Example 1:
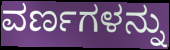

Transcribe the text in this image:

ವರ್ಣಗಳನ್ನು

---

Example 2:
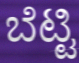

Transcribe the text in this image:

ಬೆಟ್ಟಿ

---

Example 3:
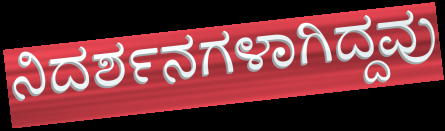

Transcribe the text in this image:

ನಿದರ್ಶನಗಳಾಗಿದ್ದವು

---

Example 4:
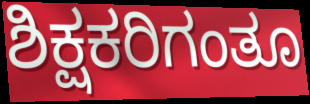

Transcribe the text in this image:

ಶಿಕ್ಷಕರಿಗಂತೂ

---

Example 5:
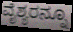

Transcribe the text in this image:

ವೈಶ್ಯರನ್ನೂ